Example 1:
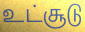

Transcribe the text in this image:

உட்சூடு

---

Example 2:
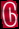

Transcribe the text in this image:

டு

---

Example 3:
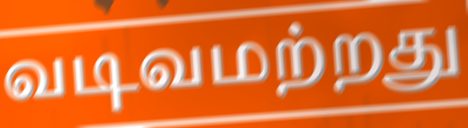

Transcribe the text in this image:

வடிவமற்றது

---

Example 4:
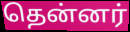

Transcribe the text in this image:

தென்னர்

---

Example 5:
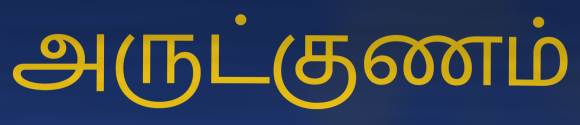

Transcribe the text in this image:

அருட்குணம்